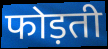
फोड़ती